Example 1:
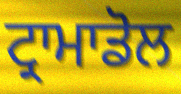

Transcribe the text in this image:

ਟ੍ਰਾਮਾਡੋਲ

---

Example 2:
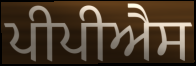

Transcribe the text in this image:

ਪੀਪੀਐਸ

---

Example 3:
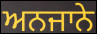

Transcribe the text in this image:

ਅਨਜਾਨੇ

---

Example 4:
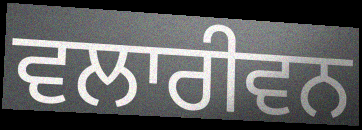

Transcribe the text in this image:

ਵਲਾਰੀਵਨ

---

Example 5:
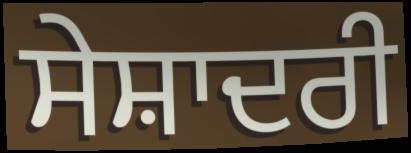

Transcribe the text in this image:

ਸੇਸ਼ਾਦਰੀ